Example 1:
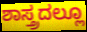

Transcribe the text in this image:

ಶಾಸ್ತ್ರದಲ್ಲೂ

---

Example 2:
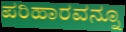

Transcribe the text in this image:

ಪರಿಹಾರವನ್ನೂ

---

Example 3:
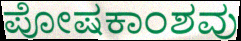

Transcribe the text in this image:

ಪೋಷಕಾಂಶವು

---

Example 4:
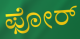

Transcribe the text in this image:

ಫೋರ್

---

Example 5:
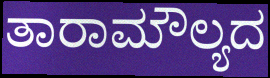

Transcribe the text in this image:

ತಾರಾಮೌಲ್ಯದ